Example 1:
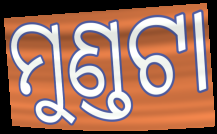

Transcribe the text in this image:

ମୁଣ୍ଡଟା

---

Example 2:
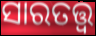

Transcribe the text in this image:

ସାରତତ୍ତ୍ଵ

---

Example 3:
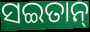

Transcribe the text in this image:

ସଇତାନ୍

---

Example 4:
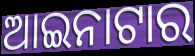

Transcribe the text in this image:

ଆଇନାଟାର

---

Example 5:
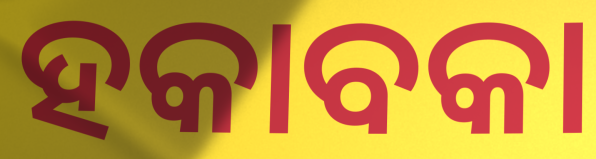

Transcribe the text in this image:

ହକାବକା